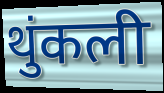
थुंकली